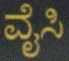
ವೈಸಿ